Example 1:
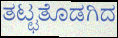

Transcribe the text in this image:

ತಟ್ಟತೊಡಗಿದ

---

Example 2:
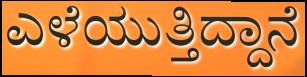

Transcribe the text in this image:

ಎಳೆಯುತ್ತಿದ್ದಾನೆ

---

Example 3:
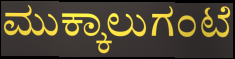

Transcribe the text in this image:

ಮುಕ್ಕಾಲುಗಂಟೆ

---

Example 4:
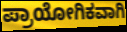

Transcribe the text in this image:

ಪ್ರಾಯೋಗಿಕವಾಗಿ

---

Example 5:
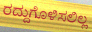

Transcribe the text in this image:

ರದ್ದುಗೊಳಿಸಲಿಲ್ಲ